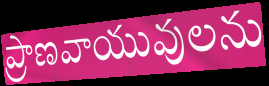
ప్రాణవాయువులను